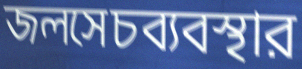
জলসেচব্যবস্থার